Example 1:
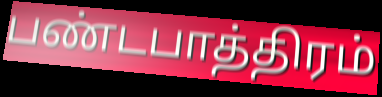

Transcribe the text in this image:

பண்டபாத்திரம்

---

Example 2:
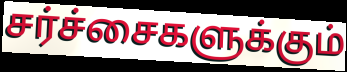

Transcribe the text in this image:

சர்ச்சைகளுக்கும்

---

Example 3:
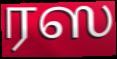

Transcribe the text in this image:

ரஸ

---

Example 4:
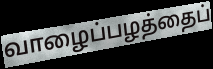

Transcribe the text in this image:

வாழைப்பழத்தைப்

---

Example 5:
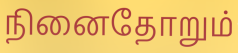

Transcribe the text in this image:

நினைதோறும்